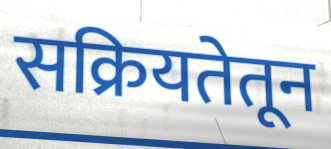
सक्रियतेतून